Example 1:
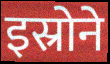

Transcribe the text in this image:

इस्रोने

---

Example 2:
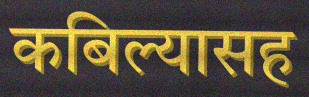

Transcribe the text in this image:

कबिल्यासह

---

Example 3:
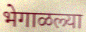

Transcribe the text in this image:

भेगाळल्या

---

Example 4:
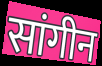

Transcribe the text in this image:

सांगीन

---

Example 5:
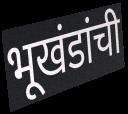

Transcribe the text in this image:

भूखंडांची